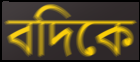
বদিকে